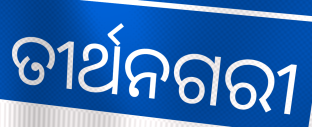
ତୀର୍ଥନଗରୀ